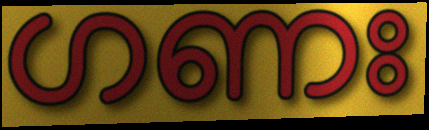
ഗണഃ